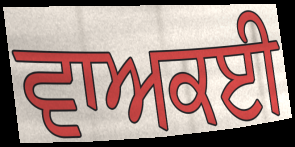
ਵਾਅਕਈ